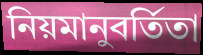
নিয়মানুবর্তিতা